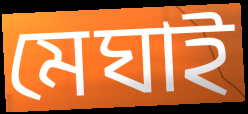
মেঘাই